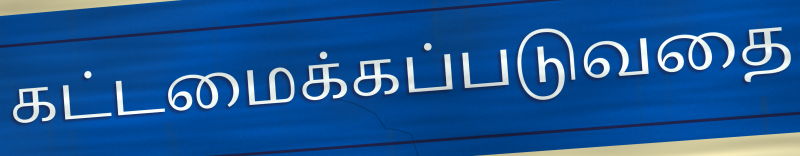
கட்டமைக்கப்படுவதை